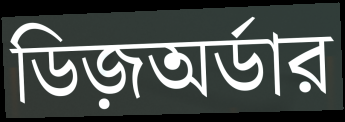
ডিজ়অর্ডার